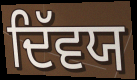
ਦਿੱਵਯ